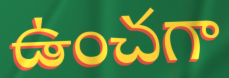
ఉంచగా